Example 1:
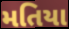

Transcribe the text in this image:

મતિયા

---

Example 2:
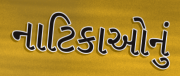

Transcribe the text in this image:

નાટિકાઓનું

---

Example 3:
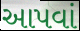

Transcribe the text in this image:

આપવાં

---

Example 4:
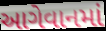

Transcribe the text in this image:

આગેવાનમાં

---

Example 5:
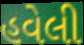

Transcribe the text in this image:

હવેલી